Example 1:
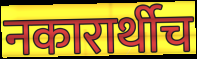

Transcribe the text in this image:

नकारार्थीच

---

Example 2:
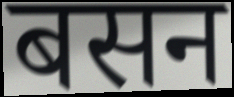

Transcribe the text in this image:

बसन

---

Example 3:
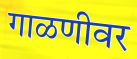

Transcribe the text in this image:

गाळणीवर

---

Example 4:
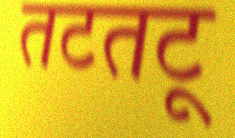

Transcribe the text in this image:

तटतटू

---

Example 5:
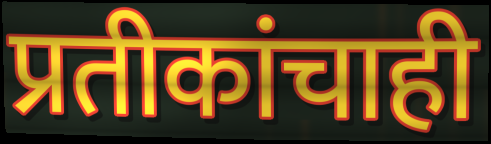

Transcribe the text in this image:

प्रतीकांचाही